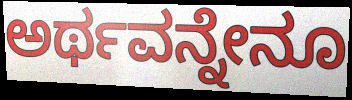
ಅರ್ಥವನ್ನೇನೂ